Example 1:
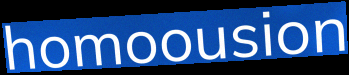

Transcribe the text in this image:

homoousion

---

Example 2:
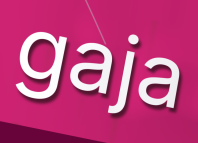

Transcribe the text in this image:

gaja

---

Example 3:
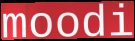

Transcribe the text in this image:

moodi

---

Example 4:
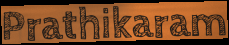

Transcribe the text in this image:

Prathikaram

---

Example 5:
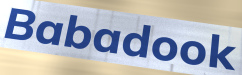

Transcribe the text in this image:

Babadook